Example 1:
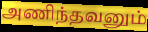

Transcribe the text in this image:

அணிந்தவனும்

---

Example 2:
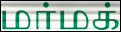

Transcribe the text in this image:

மர்மக்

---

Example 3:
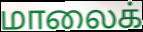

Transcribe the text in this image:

மாலைக்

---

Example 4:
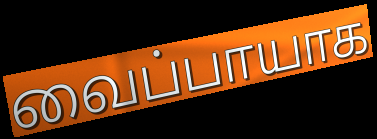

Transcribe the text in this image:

வைப்பாயாக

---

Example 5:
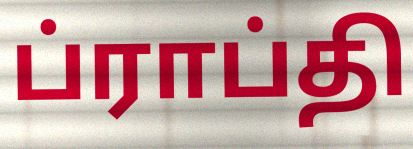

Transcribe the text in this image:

ப்ராப்தி